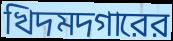
খিদমদগারের